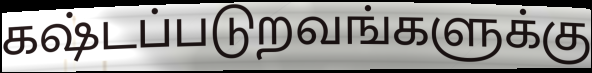
கஷ்டப்படுறவங்களுக்கு